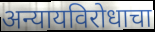
अन्यायविरोधाचा